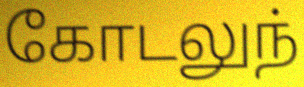
கோடலுந்